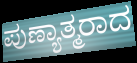
ಪುಣ್ಯಾತ್ಮರಾದ